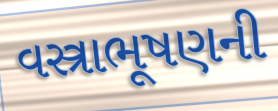
વસ્ત્રાભૂષણની